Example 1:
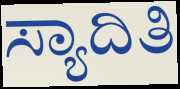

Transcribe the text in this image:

ಸ್ಯಾದಿತಿ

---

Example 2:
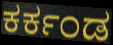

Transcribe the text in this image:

ಕರ್ಕಂಡ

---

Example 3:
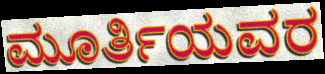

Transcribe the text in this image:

ಮೂರ್ತಿಯವರ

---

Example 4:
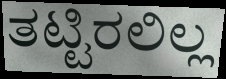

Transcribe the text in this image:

ತಟ್ಟಿರಲಿಲ್ಲ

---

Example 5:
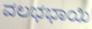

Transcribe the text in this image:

ವಲಭಭಾಯಿ